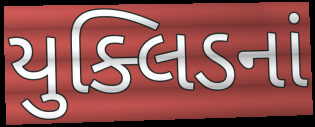
યુક્લિડનાં